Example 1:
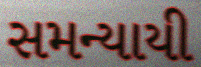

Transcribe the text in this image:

સમન્યાયી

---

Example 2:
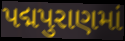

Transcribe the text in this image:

પદ્મપુરાણમાં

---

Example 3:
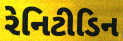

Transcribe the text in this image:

રેનિટીડિન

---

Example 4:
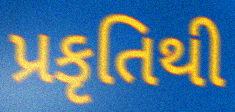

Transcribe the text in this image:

પ્રકૃતિથી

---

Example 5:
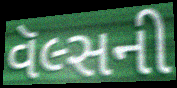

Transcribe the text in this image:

વૅલ્સની